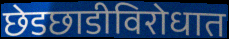
छेडछाडीविरोधात